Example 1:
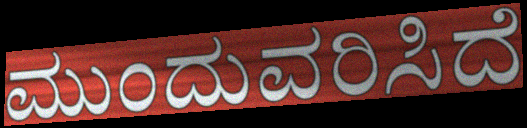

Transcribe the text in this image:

ಮುಂದುವರಿಸಿದೆ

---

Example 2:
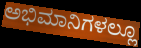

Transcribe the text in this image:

ಅಭಿಮಾನಿಗಳಲ್ಲೂ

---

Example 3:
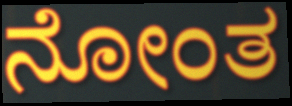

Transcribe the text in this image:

ನೋಂತ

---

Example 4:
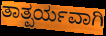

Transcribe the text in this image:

ತಾತ್ಪರ್ಯವಾಗಿ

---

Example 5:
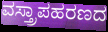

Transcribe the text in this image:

ವಸ್ತ್ರಾಪಹರಣದ